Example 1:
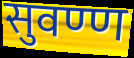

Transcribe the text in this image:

सुवण्ण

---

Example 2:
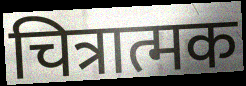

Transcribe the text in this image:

चित्रात्मक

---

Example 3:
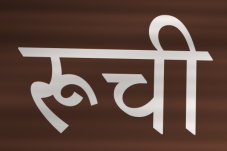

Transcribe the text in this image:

रूची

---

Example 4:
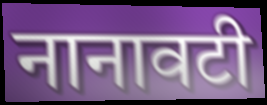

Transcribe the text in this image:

नानावटी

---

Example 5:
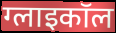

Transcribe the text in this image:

ग्लाइकॉल